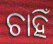
ଚାହିଁ